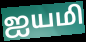
ஐயமி